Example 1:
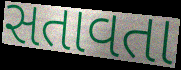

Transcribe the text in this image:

સતાવતા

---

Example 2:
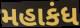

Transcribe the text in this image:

મહાકંધ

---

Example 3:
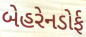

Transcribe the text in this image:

બેહરેનડોર્ફ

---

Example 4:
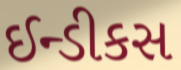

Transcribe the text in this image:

ઈન્ડીકસ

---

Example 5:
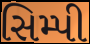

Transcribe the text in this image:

સિમ્પી